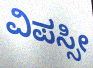
ವಿಪಸ್ಸೀ